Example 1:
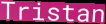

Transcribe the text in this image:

Tristan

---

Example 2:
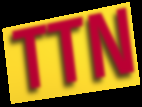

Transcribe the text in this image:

TTN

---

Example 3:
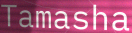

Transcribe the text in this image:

Tamasha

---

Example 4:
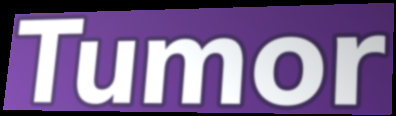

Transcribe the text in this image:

Tumor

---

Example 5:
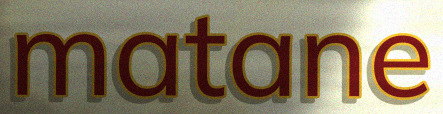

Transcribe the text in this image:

matane